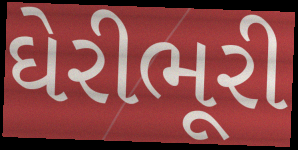
ઘેરીભૂરી